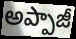
అప్పాజీ